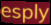
esply